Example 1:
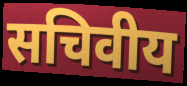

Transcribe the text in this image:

सचिवीय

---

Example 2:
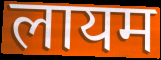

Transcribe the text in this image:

लायम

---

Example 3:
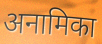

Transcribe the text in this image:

अनामिका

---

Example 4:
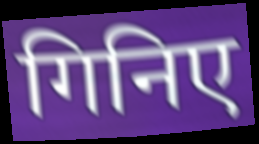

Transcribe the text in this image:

गिनिए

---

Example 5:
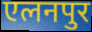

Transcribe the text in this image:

एलनपुर